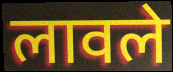
लावले